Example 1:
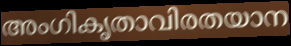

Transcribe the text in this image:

അംഗികൃതാവിരതയാന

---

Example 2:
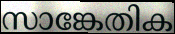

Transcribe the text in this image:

സാങ്കേതിക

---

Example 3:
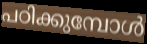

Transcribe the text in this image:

പഠിക്കുമ്പോൾ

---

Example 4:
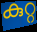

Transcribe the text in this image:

കുറ്റ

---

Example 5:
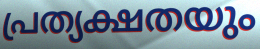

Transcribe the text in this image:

പ്രത്യക്ഷതയും